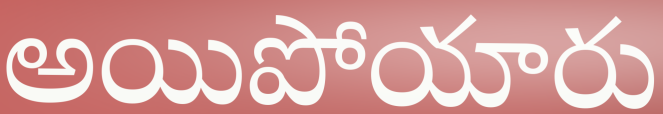
అయిపోయారు